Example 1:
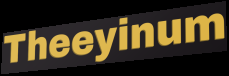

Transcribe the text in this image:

Theeyinum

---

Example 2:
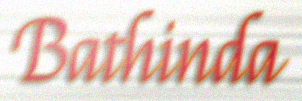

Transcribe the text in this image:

Bathinda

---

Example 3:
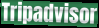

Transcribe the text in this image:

Tripadvisor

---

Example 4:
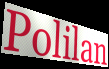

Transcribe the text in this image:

Polilan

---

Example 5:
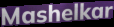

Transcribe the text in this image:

Mashelkar